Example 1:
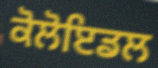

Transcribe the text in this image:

ਕੋਲੋਇਡਲ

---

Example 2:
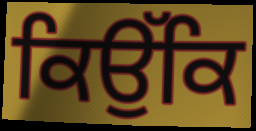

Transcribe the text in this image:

ਕਿਉੱਕਿ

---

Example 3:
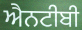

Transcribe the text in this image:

ਐਨਟੀਬੀ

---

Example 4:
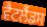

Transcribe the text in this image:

ਵੈਟਲੈਂਡਸ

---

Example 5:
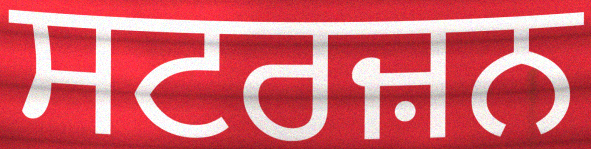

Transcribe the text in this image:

ਸਟਰਜ਼ਨ